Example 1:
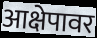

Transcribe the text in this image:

आक्षेपावर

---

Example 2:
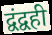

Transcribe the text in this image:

द्वंद्वही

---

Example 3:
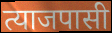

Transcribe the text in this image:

त्याजपासी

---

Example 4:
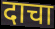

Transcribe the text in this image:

दाचा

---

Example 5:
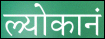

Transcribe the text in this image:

ल्योकानं